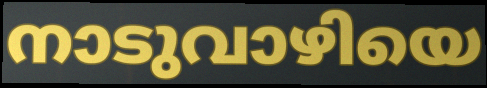
നാടുവാഴിയെ